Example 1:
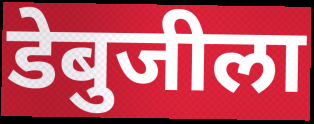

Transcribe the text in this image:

डेबुजीला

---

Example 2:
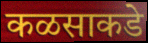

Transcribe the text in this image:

कळसाकडे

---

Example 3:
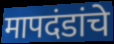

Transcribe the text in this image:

मापदंडांचे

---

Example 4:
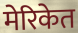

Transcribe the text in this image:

मेरिकेत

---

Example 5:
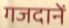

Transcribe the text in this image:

गजदानें